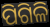
ପିଗିଳି